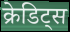
क्रेडिट्स